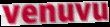
venuvu